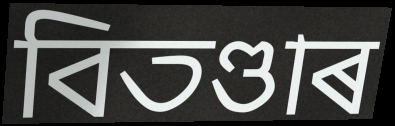
বিতণ্ডাৰ